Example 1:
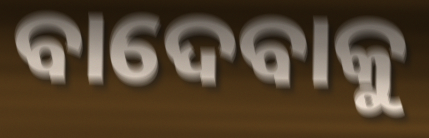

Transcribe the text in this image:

ବାଦେବାକୁ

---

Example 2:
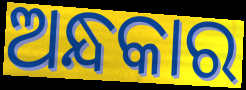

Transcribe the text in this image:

ଅନ୍ଧକାର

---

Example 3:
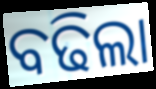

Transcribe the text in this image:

ବଢିଲା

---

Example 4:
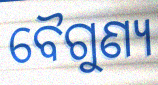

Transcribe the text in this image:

ବୈଗୁଣ୍ୟ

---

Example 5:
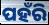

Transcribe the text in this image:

ପହଁରି